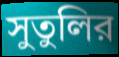
সুতুলির